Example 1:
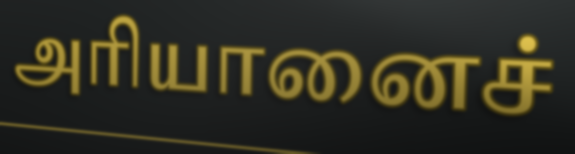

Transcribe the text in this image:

அரியானைச்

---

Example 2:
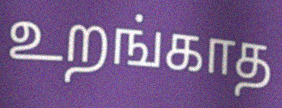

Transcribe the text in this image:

உறங்காத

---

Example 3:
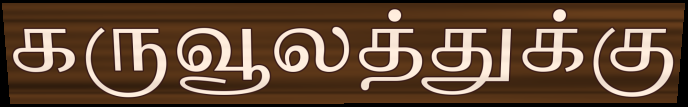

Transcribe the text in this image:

கருவூலத்துக்கு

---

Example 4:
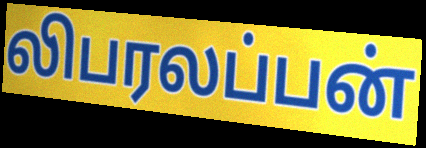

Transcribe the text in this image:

லிபரலப்பன்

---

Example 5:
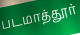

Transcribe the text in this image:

படமாத்தூர்